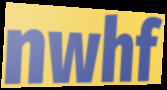
nwhf